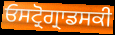
ਓਸਟ੍ਰੋਗ੍ਰਾਡਸਕੀ